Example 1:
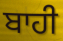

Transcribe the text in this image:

ਬਾਹੀ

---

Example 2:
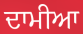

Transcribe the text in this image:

ਦਾਮੀਆ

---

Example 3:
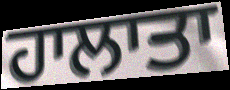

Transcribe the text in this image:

ਹਾਲਾਤਾ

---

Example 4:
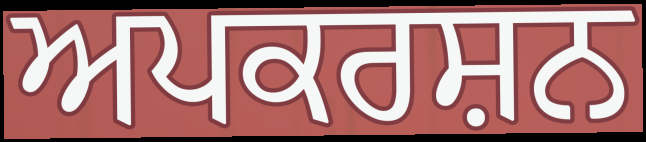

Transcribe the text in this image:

ਅਪਕਰਸ਼ਨ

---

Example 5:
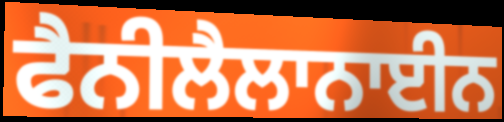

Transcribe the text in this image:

ਫੈਨੀਲੈਲਾਨਾਈਨ